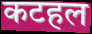
कटहल